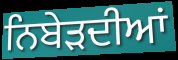
ਨਿਬੇੜਦੀਆਂ